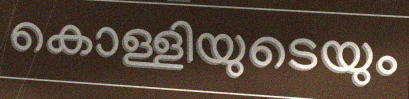
കൊള്ളിയുടെയും